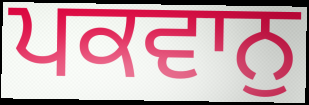
ਪਕਵਾਨੁ